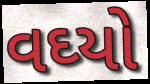
વઘ્યો